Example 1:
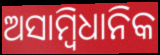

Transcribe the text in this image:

ଅସାମ୍ୱିଧାନିକ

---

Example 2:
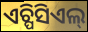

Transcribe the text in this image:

ଏଚ୍ପିସିଏଲ୍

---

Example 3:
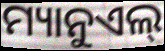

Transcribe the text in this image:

ମ୍ୟାନୁଏଲ୍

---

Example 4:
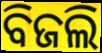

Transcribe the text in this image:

ବିଜଲି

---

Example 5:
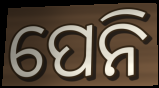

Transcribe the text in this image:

ପେନି